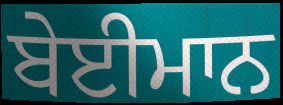
ਬੇਈਮਾਨ